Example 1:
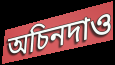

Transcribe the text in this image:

অচিনদাও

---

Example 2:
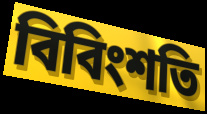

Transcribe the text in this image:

বিবিংশতি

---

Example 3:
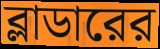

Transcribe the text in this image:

ব্লাডারের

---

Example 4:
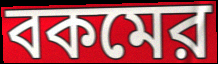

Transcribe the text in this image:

বকমের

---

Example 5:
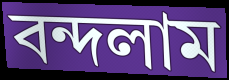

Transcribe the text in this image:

বন্দলাম